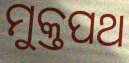
ମୁକ୍ତପଥ